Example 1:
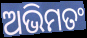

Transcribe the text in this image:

ଅଭିମତଂ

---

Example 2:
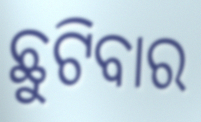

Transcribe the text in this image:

ଛୁଟିବାର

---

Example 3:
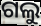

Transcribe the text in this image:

ଗଲୁ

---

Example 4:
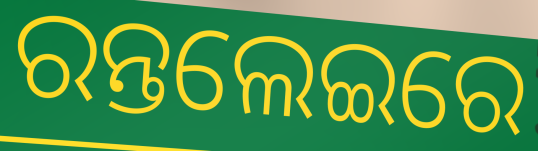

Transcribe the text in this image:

ରନ୍ତଲେଇରେ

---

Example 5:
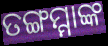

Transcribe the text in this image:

ତଙ୍ଗମ୍ମାଙ୍କ